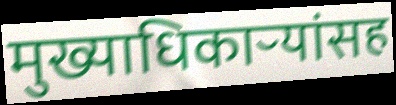
मुख्याधिकाऱ्यांसह